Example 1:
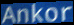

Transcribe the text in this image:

Ankor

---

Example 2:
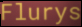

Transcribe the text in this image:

Flurys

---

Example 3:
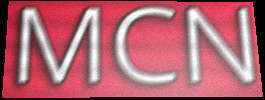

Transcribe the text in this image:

MCN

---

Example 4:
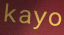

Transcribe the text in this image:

kayo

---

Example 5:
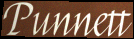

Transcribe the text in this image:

Punnett